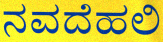
ನವದೆಹಲಿ